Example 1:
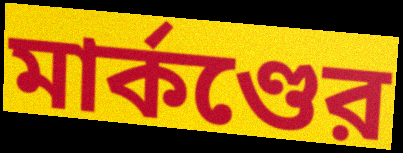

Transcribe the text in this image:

মার্কণ্ডের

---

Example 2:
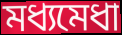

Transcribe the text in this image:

মধ্যমেধা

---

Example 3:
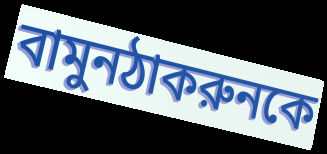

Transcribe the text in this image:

বামুনঠাকরুনকে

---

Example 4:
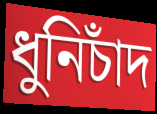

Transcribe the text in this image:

ধুনিচাঁদ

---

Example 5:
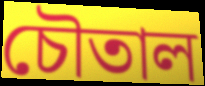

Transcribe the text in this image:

চৌতাল